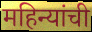
महिन्यांची